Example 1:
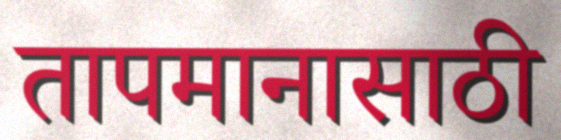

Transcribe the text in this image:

तापमानासाठी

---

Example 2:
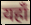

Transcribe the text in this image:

यहाँ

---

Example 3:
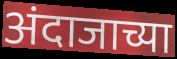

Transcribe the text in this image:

अंदाजाच्या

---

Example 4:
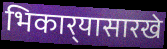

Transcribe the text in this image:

भिकार्‍यासारखे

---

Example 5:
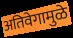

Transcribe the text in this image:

अतिवेगामुळे